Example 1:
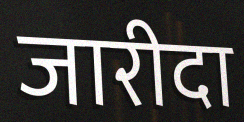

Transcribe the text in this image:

जारीदा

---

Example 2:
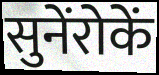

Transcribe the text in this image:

सुनेंरोकें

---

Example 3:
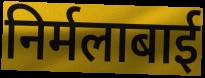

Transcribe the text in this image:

निर्मलाबाई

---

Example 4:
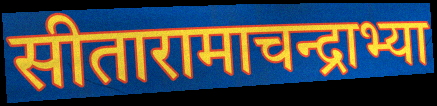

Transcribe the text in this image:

सीतारामाचन्द्राभ्या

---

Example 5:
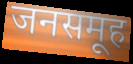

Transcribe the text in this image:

जनसमूह